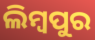
ଲିମ୍ବପୁର